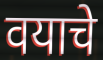
वयाचे